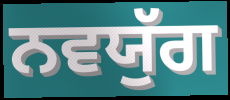
ਨਵਯੁੱਗ